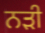
ਨੜੀ